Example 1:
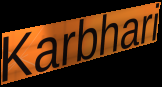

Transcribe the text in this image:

Karbhari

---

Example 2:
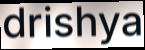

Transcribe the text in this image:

drishya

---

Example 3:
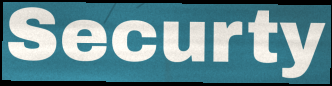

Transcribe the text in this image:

Securty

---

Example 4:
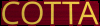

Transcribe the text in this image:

COTTA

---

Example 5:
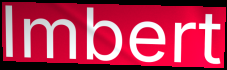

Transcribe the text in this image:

Imbert